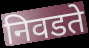
निवडते